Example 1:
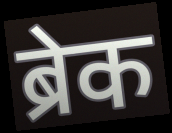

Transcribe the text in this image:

ब्रेक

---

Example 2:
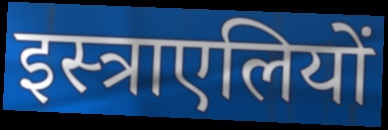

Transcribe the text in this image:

इस्त्राएलियों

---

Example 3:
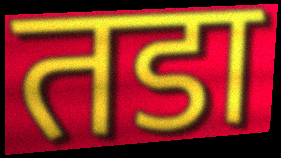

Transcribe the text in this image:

तडा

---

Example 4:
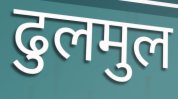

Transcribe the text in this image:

ढुलमुल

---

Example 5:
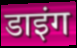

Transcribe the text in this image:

डाइंग